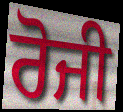
ਰੋਜੀ